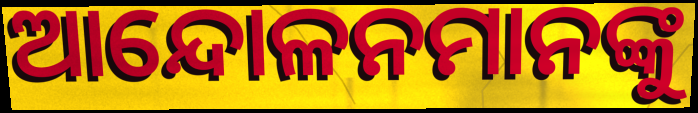
ଆନ୍ଦୋଳନମାନଙ୍କୁ